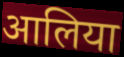
आलिया